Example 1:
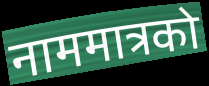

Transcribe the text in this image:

नाममात्रको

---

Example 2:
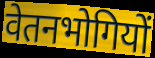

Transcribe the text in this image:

वेतनभोगियों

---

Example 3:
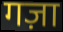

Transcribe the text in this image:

गज़ा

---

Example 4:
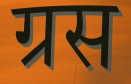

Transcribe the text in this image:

ग्रस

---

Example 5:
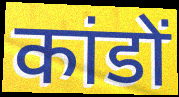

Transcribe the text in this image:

कांडों